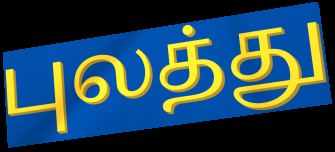
புலத்து